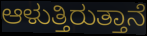
ಆಳುತ್ತಿರುತ್ತಾನೆ